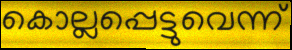
കൊല്ലപ്പെട്ടുവെന്ന്